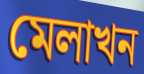
মেলাখন